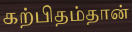
கற்பிதம்தான்